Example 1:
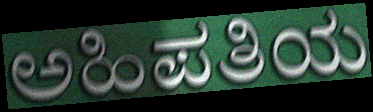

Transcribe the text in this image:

ಅಹಿಪತಿಯ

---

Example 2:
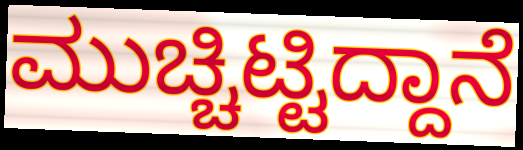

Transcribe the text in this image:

ಮುಚ್ಚಿಟ್ಟಿದ್ದಾನೆ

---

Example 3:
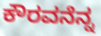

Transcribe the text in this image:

ಕೌರವನೆನ್ನ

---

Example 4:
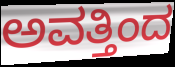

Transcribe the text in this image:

ಅವತ್ತಿಂದ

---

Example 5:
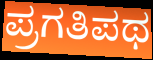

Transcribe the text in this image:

ಪ್ರಗತಿಪಥ